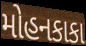
મોહનકાકા